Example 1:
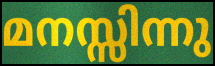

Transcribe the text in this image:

മനസ്സിന്നു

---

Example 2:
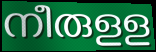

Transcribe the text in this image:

നീരുളള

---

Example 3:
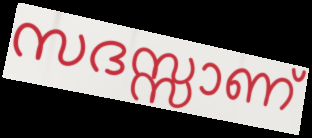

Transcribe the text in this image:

സദസ്സാണ്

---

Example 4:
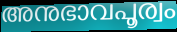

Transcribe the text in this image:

അനുഭാവപൂര്വം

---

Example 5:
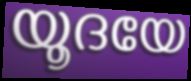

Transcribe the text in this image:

യൂദയേ